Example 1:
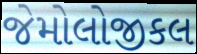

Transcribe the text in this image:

જેમોલોજીકલ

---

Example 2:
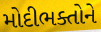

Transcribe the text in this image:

મોદીભક્તોને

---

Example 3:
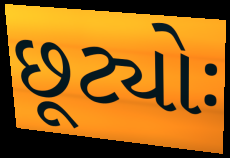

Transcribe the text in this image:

છૂટ્યોઃ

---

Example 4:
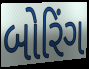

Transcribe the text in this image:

બોરિંગ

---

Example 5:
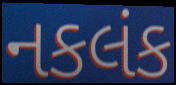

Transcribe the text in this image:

નકલંક